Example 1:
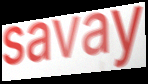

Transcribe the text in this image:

savay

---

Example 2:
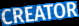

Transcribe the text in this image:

CREATOR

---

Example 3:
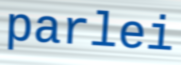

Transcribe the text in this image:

parlei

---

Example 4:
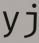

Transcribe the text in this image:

yj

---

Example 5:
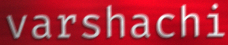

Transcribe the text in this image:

varshachi